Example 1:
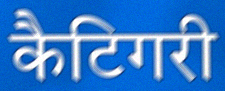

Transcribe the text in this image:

कैटिगरी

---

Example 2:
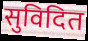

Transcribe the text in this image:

सुविदित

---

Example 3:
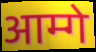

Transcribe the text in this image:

आम्गे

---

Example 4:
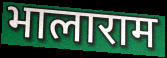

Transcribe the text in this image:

भालाराम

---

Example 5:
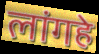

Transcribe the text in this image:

लांगहे